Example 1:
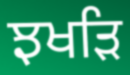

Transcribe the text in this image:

ਝਖੜਿ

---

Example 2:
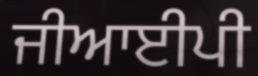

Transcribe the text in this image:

ਜੀਆਈਪੀ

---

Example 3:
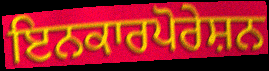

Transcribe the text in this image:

ਇਨਕਾਰਪੋਰੇਸ਼ਨ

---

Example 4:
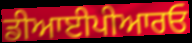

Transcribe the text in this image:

ਡੀਆਈਪੀਆਰਓ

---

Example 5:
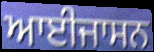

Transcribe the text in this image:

ਆਈਜਾਸਨ